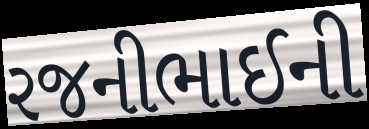
રજનીભાઈની